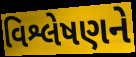
વિશ્લેષણને